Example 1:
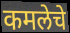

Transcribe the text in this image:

कमलेचे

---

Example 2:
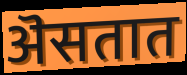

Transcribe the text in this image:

ऄसतात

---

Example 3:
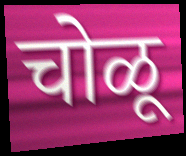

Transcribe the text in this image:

चोळू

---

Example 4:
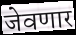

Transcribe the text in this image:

जेवणार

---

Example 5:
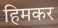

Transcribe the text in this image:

हिमकर